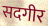
सदगीर